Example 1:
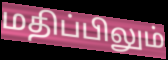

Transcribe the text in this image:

மதிப்பிலும்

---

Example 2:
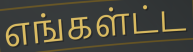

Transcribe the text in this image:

எங்கள்ட்ட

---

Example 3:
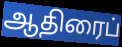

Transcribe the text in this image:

ஆதிரைப்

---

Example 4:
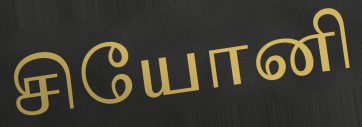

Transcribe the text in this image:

சியோனி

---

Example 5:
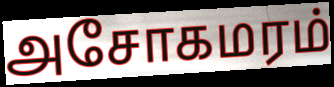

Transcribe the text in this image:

அசோகமரம்